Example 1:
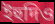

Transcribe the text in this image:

ইহুদিও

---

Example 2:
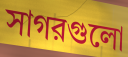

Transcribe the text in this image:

সাগরগুলো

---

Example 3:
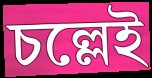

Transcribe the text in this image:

চল্লেই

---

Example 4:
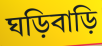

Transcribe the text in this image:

ঘড়িবাড়ি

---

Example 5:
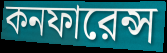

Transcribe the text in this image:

কনফারেন্স